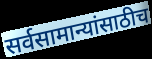
सर्वसामान्यांसाठीच